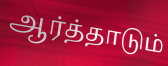
ஆர்த்தாடும்